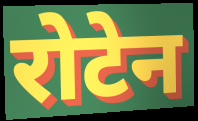
रोटेन